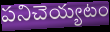
పనిచెయ్యటం